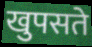
खुपसते